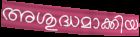
അശുദ്ധമാക്കിയ